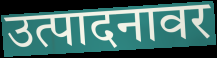
उत्पादनावर